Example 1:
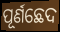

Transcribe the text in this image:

ପୂର୍ଣଛେଦ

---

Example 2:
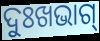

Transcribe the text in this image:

ଦୁଃଖଭାଗ୍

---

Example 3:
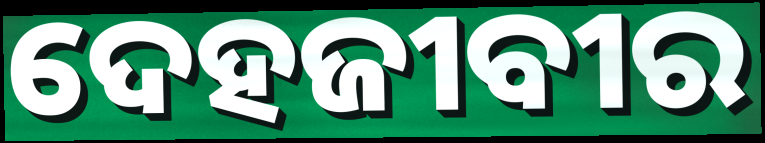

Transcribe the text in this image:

ଦେହଜୀବୀର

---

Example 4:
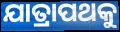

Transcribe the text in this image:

ଯାତ୍ରାପଥକୁ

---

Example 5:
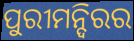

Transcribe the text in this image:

ପୁରୀମନ୍ଦିରର